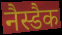
नैस्डैक